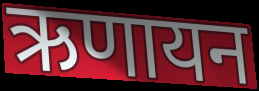
ऋणायन